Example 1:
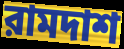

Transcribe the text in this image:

রামদাশ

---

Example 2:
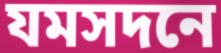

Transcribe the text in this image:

যমসদনে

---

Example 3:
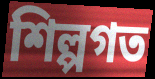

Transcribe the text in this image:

শিল্পগত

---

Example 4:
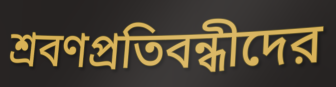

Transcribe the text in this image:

শ্রবণপ্রতিবন্ধীদের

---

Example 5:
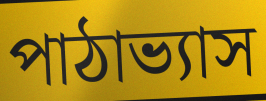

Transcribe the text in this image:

পাঠাভ্যাস